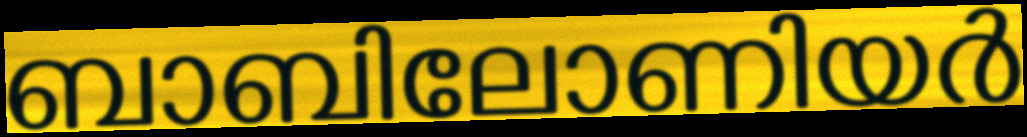
ബാബിലോണിയർ